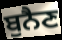
ਬੁਨੈਣ